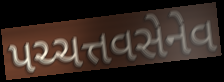
પચ્ચત્તવસેનેવ